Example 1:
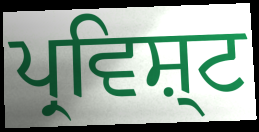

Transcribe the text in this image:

ਪ੍ਰਵਿਸ਼੍ਟ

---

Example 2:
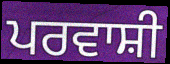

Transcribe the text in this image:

ਪਰਵਾਸ਼ੀ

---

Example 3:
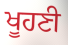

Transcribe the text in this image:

ਖੂਹਣੀ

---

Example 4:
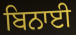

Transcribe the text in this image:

ਬਿਨਾਈ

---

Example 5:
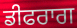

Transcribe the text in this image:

ਡੀਫਰਾਗ